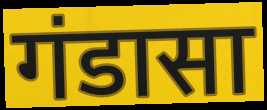
गंडासा